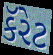
કૅરેટ